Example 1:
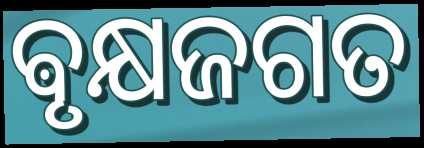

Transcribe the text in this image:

ଵୃକ୍ଷଜଗତ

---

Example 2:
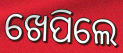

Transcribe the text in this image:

ଖେପିଲେ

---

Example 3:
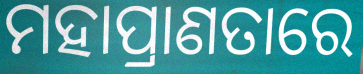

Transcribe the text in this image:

ମହାପ୍ରାଣତାରେ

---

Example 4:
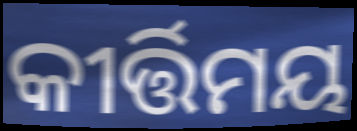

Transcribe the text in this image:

କୀର୍ତ୍ତିମୟ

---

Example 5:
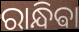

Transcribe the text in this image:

ରାନ୍ଧିଵା